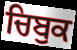
ਚਿਬੁਕ